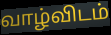
வாழ்விடம்